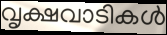
വൃക്ഷവാടികൾ